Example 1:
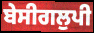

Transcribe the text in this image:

ਬੇਸੀਗਲੁਪੀ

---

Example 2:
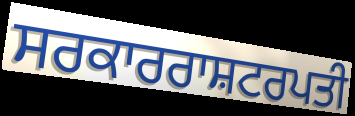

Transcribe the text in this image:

ਸਰਕਾਰਰਾਸ਼ਟਰਪਤੀ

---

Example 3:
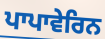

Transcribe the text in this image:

ਪਾਪਾਵੇਰਿਨ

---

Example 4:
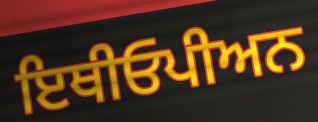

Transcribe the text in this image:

ਇਥੀਓਪੀਅਨ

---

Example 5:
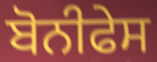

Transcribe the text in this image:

ਬੋਨੀਫੇਸ